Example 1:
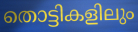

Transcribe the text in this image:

തൊട്ടികളിലും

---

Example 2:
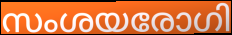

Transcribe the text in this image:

സംശയരോഗി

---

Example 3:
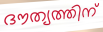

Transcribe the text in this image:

ദൗത്യത്തിന്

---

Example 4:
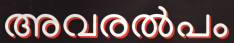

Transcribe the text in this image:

അവരൽപം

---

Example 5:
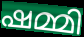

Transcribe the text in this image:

ഷമ്മി